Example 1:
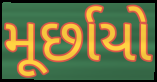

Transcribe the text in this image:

મૂર્છાયો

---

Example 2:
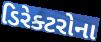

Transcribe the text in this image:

ડિરેક્ટરોના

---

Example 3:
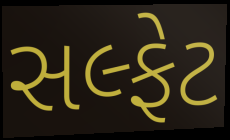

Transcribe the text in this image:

સલ્ફેટ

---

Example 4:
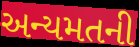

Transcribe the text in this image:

અન્યમતની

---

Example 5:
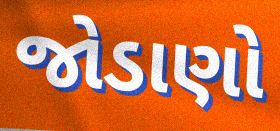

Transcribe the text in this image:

જોડાણો